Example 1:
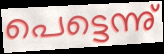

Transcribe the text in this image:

പെട്ടെന്നു്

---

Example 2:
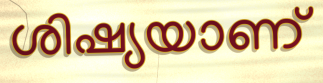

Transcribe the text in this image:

ശിഷ്യയാണ്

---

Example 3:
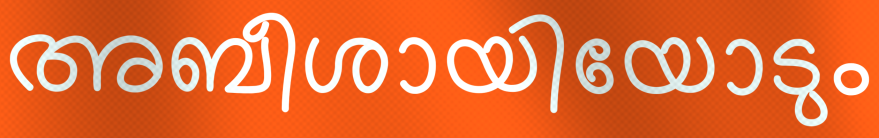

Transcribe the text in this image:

അബീശായിയോടും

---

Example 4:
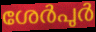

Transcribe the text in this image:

ശേർപുർ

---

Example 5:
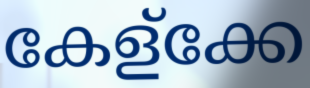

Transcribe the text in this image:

കേള്ക്കേ